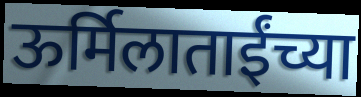
ऊर्मिलाताईंच्या